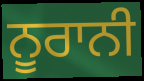
ਨੂਰਾਨੀ